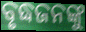
ବୃଦ୍ଧଜନଙ୍କୁ